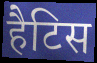
हैटिस